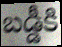
బడ్డీకి